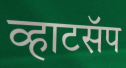
व्हाटसॅप